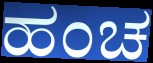
ಹಂಚ